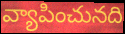
వ్యాపించునది